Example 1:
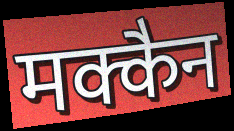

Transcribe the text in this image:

मक्कैन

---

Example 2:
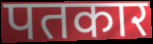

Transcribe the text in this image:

पतकार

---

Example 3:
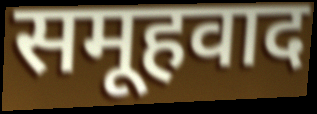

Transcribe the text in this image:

समूहवाद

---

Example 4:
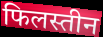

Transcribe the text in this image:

फिलस्तीन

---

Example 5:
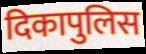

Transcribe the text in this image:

दिकापुलिस